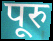
पूरु